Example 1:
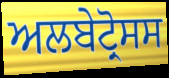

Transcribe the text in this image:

ਅਲਬੇਟ੍ਰੋਸਸ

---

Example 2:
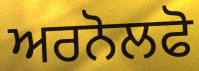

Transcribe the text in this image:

ਅਰਨੋਲਫੋ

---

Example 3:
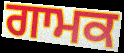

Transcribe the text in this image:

ਗਾਮਕ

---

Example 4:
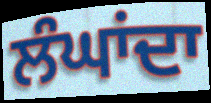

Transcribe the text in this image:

ਲੰਘਾਂਦਾ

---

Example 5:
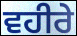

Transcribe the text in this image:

ਵਹੀਰੇ